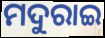
ମଦୁରାଇ